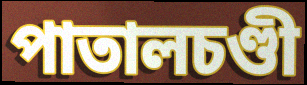
পাতালচণ্ডী